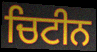
ਚਿਟੀਨ